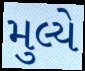
મુલ્યે